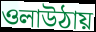
ওলাউঠায়